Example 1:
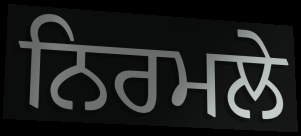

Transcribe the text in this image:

ਨਿਰਮਲੇ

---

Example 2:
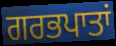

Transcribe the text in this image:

ਗਰਭਪਾਤਾਂ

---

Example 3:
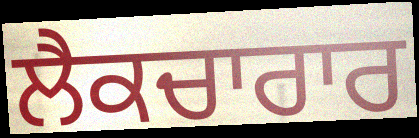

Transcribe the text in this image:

ਲੈਕਚਾਰਾਰ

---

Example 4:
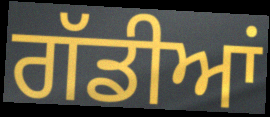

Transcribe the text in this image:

ਗੱਡੀਆਂ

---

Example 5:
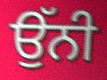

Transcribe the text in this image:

ਉੱਨੀ